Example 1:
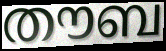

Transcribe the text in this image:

തൗബ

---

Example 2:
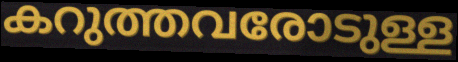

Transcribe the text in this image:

കറുത്തവരോടുള്ള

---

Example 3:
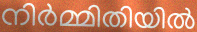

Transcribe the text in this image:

നിർമ്മിതിയിൽ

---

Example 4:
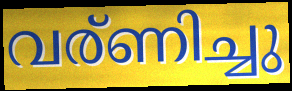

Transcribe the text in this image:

വര്ണിച്ചു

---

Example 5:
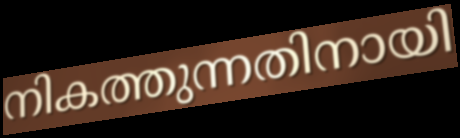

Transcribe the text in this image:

നികത്തുന്നതിനായി